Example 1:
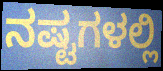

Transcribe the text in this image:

ನಷ್ಟಗಳಲ್ಲಿ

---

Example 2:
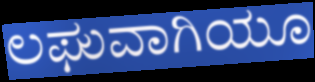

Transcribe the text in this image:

ಲಘುವಾಗಿಯೂ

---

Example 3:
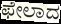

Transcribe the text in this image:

ಫೇಲಾದ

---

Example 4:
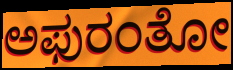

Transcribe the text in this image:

ಅಫುರಂತೋ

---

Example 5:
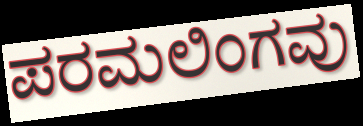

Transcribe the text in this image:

ಪರಮಲಿಂಗವು